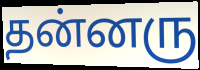
தன்னரு